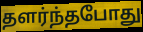
தளர்ந்தபோது